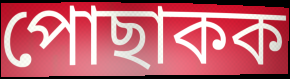
পোছাকক